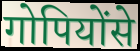
गोपियोंसे